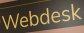
Webdesk